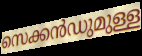
സെക്കൻഡുമുള്ള